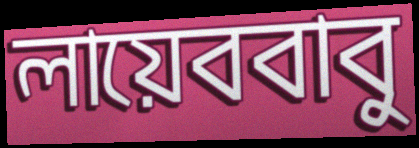
লায়েববাবু